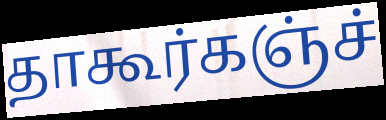
தாகூர்கஞ்ச்